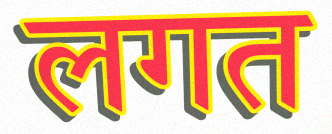
लगत